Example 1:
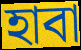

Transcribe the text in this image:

হাবা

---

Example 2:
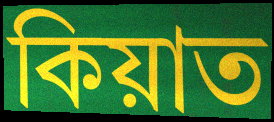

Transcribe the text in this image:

কিয়াত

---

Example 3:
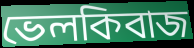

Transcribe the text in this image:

ভেলকিবাজ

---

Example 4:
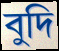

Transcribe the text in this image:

বুদি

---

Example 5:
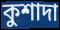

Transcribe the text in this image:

কুশাদা